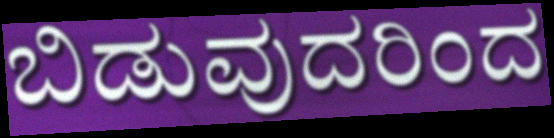
ಬಿಡುವುದರಿಂದ